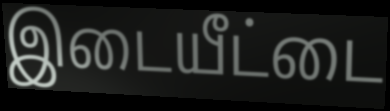
இடையீட்டை